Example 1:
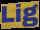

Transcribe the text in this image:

Lig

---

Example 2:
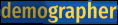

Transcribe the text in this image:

demographer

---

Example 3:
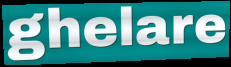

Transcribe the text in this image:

ghelare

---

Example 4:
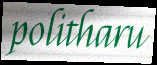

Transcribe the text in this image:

politharu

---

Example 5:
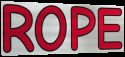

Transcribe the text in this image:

ROPE